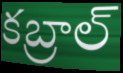
కబ్రాల్